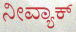
ನೀವ್ಯಾಕ್